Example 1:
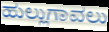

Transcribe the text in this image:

ಹುಲ್ಲುಗಾವಲು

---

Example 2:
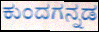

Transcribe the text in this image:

ಕುಂದಗನ್ನಡ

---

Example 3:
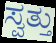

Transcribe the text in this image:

ಸ್ವತ್ತು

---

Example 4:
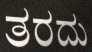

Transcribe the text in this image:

ತರದು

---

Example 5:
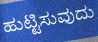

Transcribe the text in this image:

ಹುಟ್ಟಿಸುವುದು